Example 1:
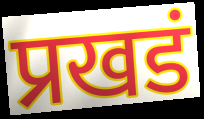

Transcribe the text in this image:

प्रखडं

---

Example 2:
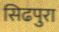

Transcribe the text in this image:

सिढपुरा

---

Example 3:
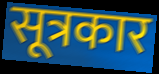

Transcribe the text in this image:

सूत्रकार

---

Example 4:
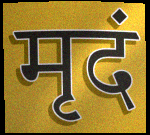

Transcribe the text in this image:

मृदं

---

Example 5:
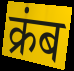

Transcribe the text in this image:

क्रंब